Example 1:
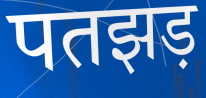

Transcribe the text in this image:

पतझड़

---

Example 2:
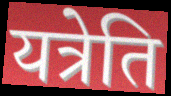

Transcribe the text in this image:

यत्रेति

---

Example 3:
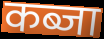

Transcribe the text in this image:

कब्जा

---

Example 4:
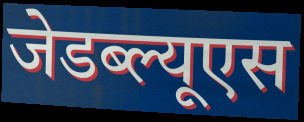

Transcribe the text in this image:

जेडब्ल्यूएस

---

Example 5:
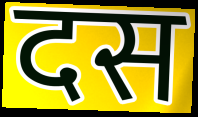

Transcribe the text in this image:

दस